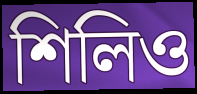
শিলিও